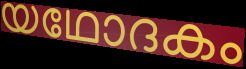
യഥോദകം